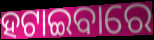
ହଟାଇବାରେ